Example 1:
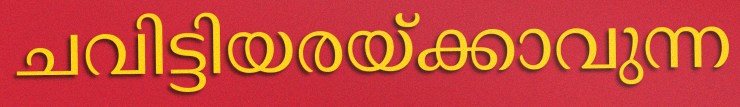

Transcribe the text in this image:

ചവിട്ടിയരയ്ക്കാവുന്ന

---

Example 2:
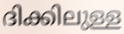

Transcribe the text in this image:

ദിക്കിലുള്ള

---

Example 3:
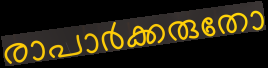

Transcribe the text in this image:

രാപാർക്കരുതോ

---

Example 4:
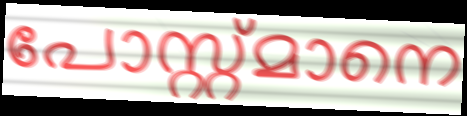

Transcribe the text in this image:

പോസ്റ്റ്മാനെ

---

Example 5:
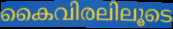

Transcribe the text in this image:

കൈവിരലിലൂടെ